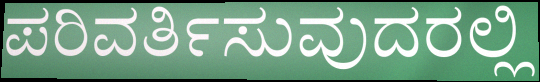
ಪರಿವರ್ತಿಸುವುದರಲ್ಲಿ